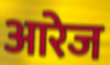
आरेज